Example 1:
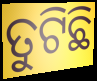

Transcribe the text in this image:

ତୁଟିଛି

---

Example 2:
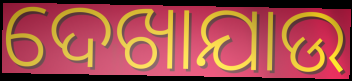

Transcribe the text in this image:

ଦେଖାଯାଉ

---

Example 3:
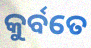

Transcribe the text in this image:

କୁର୍ବତେ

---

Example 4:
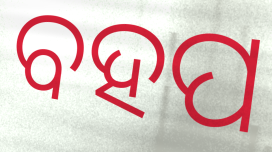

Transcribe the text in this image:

ବହପ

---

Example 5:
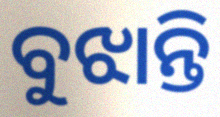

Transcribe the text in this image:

ବୁଝାନ୍ତି